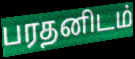
பரதனிடம்